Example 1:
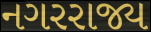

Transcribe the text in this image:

નગરરાજ્ય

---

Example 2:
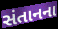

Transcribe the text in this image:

સંતાનના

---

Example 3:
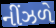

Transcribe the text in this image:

નીંઝળે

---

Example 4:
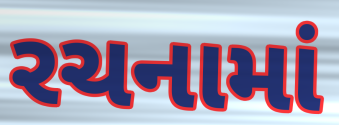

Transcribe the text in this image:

રચનામાં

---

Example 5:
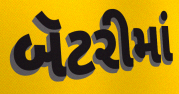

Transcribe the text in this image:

બૅટરીમાં